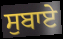
ਸੁਬਾਏ